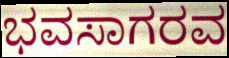
ಭವಸಾಗರವ